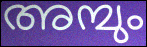
അമ്പും